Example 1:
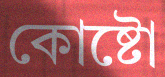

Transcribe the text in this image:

কোষ্টো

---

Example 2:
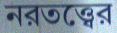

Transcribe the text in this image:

নরতত্ত্বের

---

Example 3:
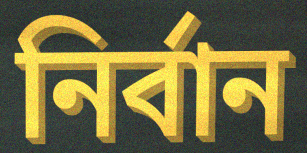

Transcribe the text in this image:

নির্বান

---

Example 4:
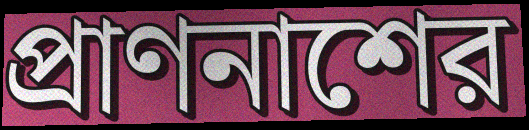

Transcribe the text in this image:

প্রাণনাশের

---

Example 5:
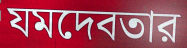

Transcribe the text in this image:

যমদেবতার